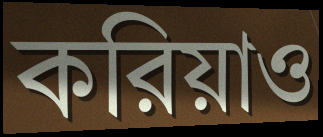
করিয়াও